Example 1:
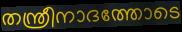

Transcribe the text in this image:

തന്ത്രീനാദത്തോടെ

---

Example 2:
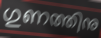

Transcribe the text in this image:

ഗുണത്തിനു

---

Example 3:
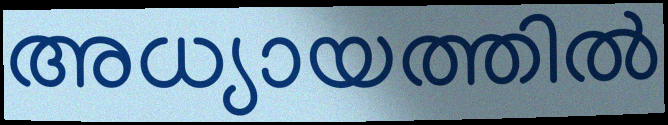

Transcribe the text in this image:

അധ്യായത്തിൽ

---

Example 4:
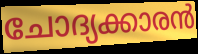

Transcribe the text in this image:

ചോദ്യക്കാരൻ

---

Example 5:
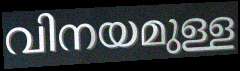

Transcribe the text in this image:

വിനയമുള്ള